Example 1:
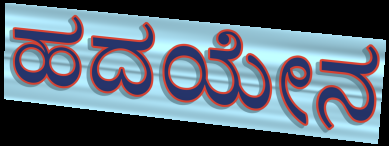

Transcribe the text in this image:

ಹದಯೇನ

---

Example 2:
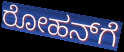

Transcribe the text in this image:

ರೋಹನ್‌ಗೆ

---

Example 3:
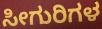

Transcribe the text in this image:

ಸೀಗುರಿಗಳ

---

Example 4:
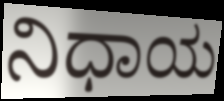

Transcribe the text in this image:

ನಿಧಾಯ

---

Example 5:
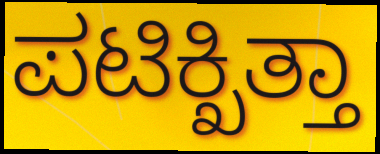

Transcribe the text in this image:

ಪಟಿಕ್ಖಿತ್ತಾ